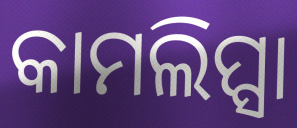
କାମଲିପ୍ସା